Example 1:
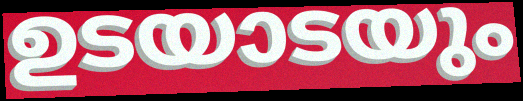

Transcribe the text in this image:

ഉടയാടയും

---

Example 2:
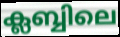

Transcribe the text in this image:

ക്ലബ്ബിലെ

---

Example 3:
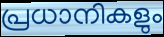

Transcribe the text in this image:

പ്രധാനികളും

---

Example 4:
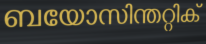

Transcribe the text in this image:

ബയോസിന്തറ്റിക്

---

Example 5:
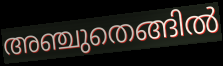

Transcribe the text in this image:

അഞ്ചുതെങ്ങിൽ